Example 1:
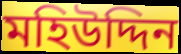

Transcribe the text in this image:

মহিউদ্দিন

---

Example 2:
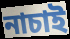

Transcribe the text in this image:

নাচাই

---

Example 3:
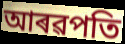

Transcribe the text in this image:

আৰৱপতি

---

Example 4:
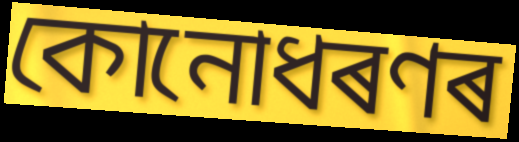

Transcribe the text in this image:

কোনোধৰণৰ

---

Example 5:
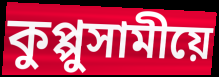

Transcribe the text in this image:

কুপ্পুসামীয়ে